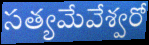
సత్యమేవేశ్వరో